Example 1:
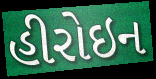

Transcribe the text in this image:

હીરોઇન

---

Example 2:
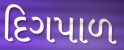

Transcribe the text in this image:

દિગપાળ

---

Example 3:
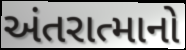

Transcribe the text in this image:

અંતરાત્માનો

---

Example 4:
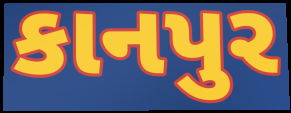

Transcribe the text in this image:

કાનપુર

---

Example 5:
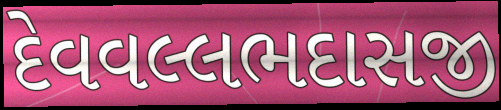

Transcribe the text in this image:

દેવવલ્લભદાસજી